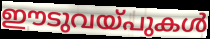
ഈടുവയ്പുകൾ